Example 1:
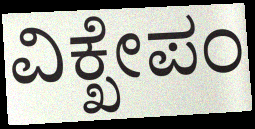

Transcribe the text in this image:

ವಿಕ್ಖೇಪಂ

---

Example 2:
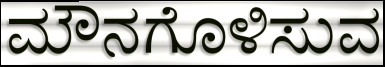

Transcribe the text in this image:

ಮೌನಗೊಳಿಸುವ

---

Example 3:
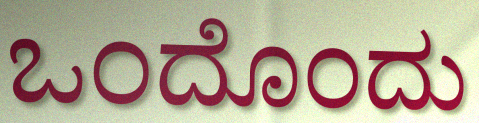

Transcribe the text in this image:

ಒಂದೊಂದು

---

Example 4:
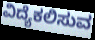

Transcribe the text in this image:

ವಿದ್ಯೆಕಲಿಸುವ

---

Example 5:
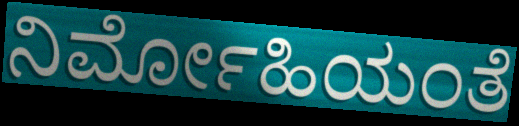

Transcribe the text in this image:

ನಿರ್ಮೋಹಿಯಂತೆ